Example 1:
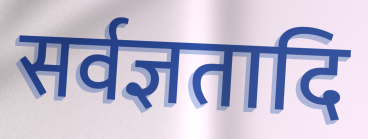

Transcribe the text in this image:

सर्वज्ञतादि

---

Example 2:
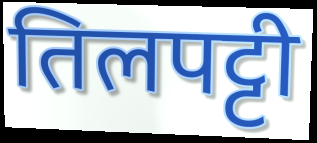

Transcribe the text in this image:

तिलपट्टी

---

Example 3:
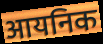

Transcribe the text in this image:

आयनिक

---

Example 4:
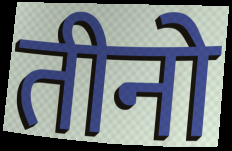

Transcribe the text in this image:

तीनो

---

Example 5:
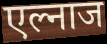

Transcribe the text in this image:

एल्नाज